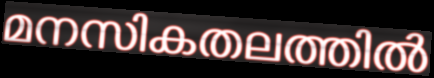
മനസികതലത്തിൽ